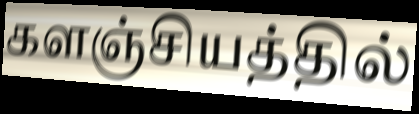
களஞ்சியத்தில்